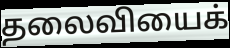
தலைவியைக்